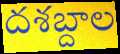
దశబ్దాల